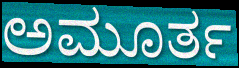
ಅಮೂರ್ತ